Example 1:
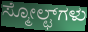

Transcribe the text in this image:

ಸ್ಮೋಲ್ಟ್‌ಗಳು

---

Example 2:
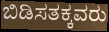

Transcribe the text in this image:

ಬಿಡಿಸತಕ್ಕವರು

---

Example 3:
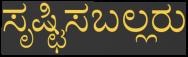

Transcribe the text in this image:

ಸೃಷ್ಟಿಸಬಲ್ಲರು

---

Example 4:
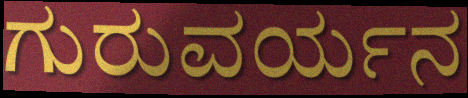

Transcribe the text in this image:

ಗುರುವರ್ಯನ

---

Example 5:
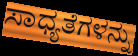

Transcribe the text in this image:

ಸಾಧ್ಯತೆಗಳನ್ನು